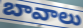
బావాలు